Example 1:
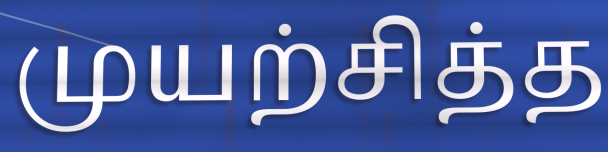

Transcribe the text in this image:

முயற்சித்த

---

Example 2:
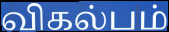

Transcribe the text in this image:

விகல்பம்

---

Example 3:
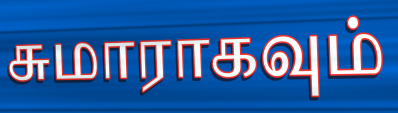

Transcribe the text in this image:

சுமாராகவும்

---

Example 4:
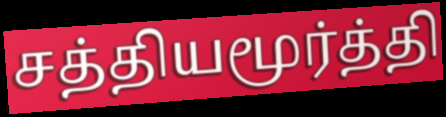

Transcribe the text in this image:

சத்தியமூர்த்தி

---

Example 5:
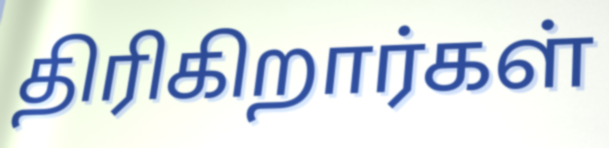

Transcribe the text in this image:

திரிகிறார்கள்